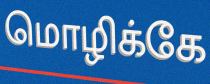
மொழிக்கே